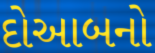
દોઆબનો